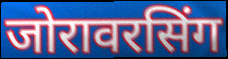
जोरावरसिंग